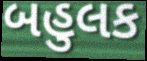
બહુલક